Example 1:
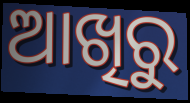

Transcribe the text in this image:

ଆଖିରୁ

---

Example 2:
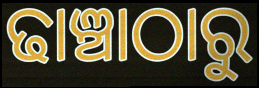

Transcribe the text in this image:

ଢାଞ୍ଚାଠାରୁ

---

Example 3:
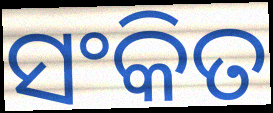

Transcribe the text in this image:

ସଂକିତ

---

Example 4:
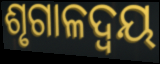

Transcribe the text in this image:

ଶୃଗାଳଦ୍ୱୟ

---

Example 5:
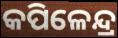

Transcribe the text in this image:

କପିଳେନ୍ଦ୍ର